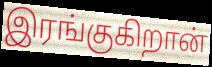
இரங்குகிறான்